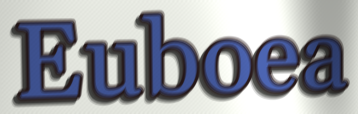
Euboea